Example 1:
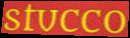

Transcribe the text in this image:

stucco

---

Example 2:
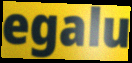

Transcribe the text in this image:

egalu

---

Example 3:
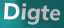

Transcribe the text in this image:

Digte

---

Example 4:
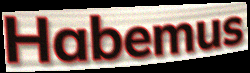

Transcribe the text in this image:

Habemus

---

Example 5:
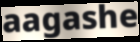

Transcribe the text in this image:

aagashe